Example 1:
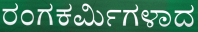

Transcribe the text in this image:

ರಂಗಕರ್ಮಿಗಳಾದ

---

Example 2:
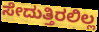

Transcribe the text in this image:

ಸೇದುತ್ತಿರಲಿಲ್ಲ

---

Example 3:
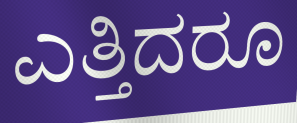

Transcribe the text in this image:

ಎತ್ತಿದರೂ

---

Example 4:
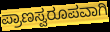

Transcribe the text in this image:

ಪ್ರಾಣಸ್ವರೂಪವಾಗಿ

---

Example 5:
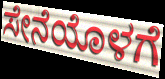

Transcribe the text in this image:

ಸೇನೆಯೊಳಗೆ